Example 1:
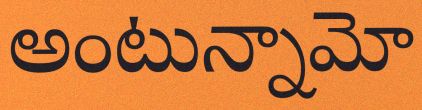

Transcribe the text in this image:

అంటున్నామో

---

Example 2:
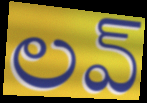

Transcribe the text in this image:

లవ్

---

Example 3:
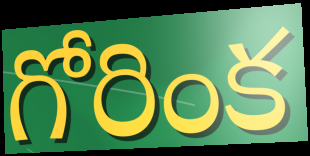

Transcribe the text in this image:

గోరింక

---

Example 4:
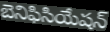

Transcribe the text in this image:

బెనిఫిసియేషన్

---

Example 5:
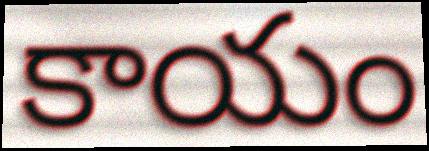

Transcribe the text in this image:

కాయం